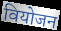
वियोजन